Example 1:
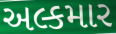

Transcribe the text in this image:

અલ્કમાર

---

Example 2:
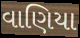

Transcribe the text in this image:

વાણિયા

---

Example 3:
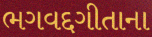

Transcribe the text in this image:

ભગવદ્દગીતાના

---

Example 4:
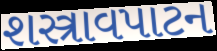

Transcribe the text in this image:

શસ્ત્રાવપાટન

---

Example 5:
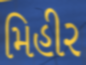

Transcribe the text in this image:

મિહીર